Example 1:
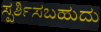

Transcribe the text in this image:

ಸ್ಪರ್ಶಿಸಬಹುದು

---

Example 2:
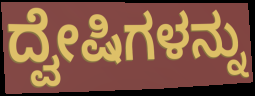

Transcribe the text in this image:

ದ್ವೇಷಿಗಳನ್ನು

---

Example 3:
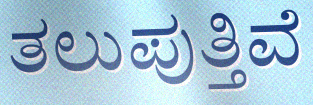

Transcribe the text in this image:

ತಲುಪುತ್ತಿವೆ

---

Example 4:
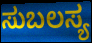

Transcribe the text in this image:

ಸುಬಲಸ್ಯ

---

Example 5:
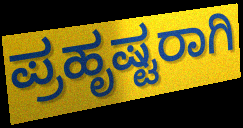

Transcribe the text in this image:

ಪ್ರಹೃಷ್ಟರಾಗಿ